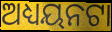
ଅଧ୍ୟୟନଟା